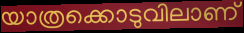
യാത്രക്കൊടുവിലാണ്